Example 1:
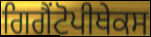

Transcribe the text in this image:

ਗਿਗੈਂਟੋਪੀਥੇਕਸ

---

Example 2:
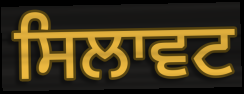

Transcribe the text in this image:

ਸਿਲਾਵਟ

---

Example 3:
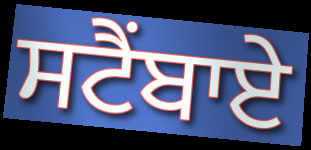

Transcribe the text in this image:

ਸਟੈਂਬਾਏ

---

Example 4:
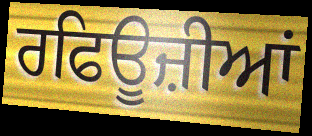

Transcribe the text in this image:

ਰਫਿਊਜ਼ੀਆਂ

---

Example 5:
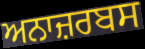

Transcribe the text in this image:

ਅਨਾਜ਼ਰਬਸ